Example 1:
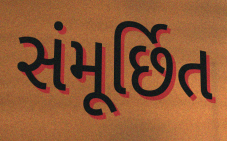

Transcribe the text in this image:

સંમૂર્છિત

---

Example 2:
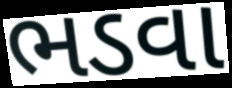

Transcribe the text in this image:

ભડવા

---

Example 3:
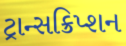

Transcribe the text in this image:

ટ્રાન્સક્રિપ્શન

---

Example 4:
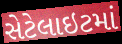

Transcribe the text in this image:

સેટેલાઇટમાં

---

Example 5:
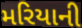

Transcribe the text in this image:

મરિયાની